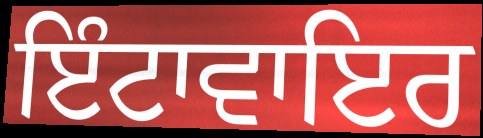
ਇੰਟਾਵਾਇਰ